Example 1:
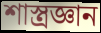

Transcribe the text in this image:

শাস্ত্রজ্ঞান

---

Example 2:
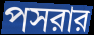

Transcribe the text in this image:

পসরার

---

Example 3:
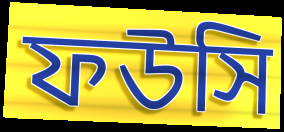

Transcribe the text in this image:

ফউসি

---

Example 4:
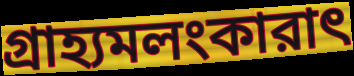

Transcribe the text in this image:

গ্রাহ্যমলংকারাৎ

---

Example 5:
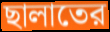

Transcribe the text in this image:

ছালাতের